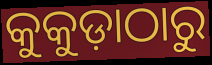
କୁକୁଡ଼ାଠାରୁ